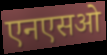
एनएसओ